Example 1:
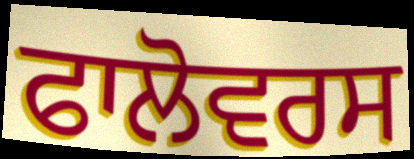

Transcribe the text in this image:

ਫਾਲੋਵਰਸ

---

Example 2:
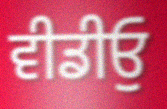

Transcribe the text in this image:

ਵੀਡੀਓੁ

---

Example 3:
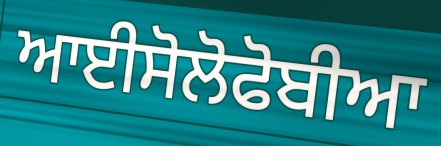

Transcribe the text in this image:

ਆਈਸੋਲੋਫੋਬੀਆ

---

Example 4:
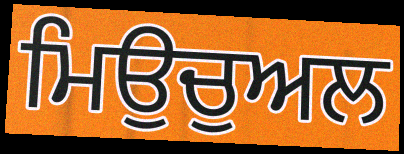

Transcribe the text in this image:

ਮਿਉਚੁਅਲ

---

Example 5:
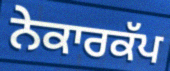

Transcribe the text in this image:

ਨੇਕਾਰਕੱਪ